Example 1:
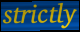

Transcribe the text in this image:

strictly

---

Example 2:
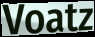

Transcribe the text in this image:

Voatz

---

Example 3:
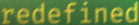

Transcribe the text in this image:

redefined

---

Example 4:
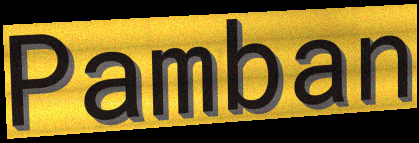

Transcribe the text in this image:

Pamban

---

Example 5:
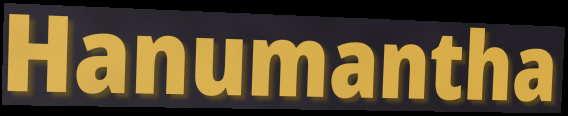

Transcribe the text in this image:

Hanumantha